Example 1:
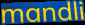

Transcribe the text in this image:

mandli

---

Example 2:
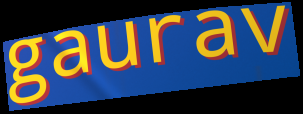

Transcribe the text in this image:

gaurav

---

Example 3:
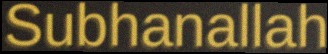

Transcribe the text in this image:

Subhanallah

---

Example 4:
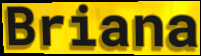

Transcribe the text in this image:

Briana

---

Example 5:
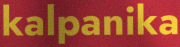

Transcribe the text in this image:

kalpanika